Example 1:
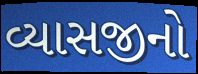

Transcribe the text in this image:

વ્યાસજીનો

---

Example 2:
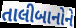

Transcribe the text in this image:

તાલીબાનોને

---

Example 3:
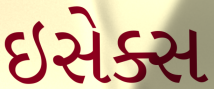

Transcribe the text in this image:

ઇસેક્સ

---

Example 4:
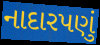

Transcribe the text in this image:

નાદારપણું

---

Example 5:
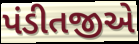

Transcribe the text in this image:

પંડીતજીએ